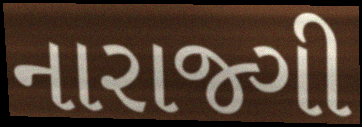
નારાજ્ગી